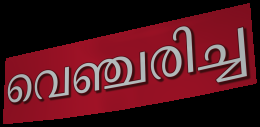
വെഞ്ചരിച്ച